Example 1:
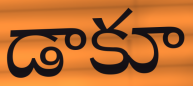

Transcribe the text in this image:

డాకూ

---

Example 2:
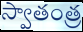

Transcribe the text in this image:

స్వాతంత్ర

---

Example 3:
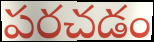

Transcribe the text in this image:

పరచడం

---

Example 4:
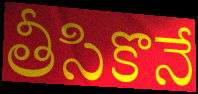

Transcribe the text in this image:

తీసికొనే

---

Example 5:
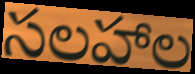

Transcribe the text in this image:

సలహాల